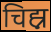
चिह्न